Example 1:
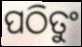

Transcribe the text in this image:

ପଠିତୁଂ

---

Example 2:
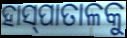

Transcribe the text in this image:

ହାସ୍‍ପାତାଳକୁ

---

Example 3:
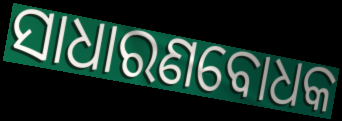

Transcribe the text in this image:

ସାଧାରଣବୋଧକ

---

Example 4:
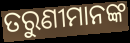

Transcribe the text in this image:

ତରୁଣୀମାନଙ୍କ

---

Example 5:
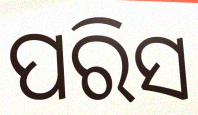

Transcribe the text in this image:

ପରିସ